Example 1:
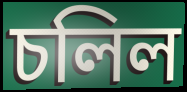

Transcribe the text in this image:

চলিল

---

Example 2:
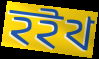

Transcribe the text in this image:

হইথ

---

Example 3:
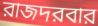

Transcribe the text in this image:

রাজদরবার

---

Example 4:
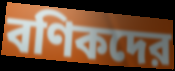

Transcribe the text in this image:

বণিকদের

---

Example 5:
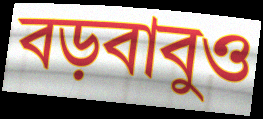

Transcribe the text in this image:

বড়বাবুও